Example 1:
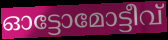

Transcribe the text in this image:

ഓട്ടോമോട്ടീവ്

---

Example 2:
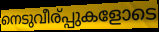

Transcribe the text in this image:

നെടുവീര്പ്പുകളോടെ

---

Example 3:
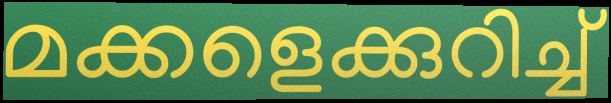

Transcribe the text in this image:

മക്കളെക്കുറിച്ച്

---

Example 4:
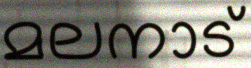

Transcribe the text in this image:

മലനാട്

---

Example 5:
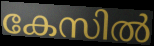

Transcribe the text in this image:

കേസിൽ